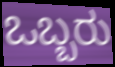
ಒಬ್ಬರು